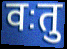
वःतु